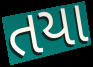
તયા